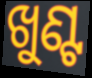
ଖୁଣ୍ଟ